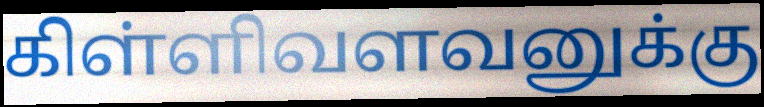
கிள்ளிவளவனுக்கு